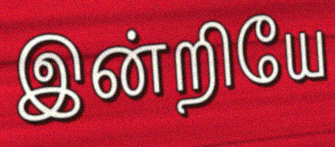
இன்றியே